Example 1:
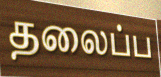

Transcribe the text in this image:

தலைப்ப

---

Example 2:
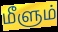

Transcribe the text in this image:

மீளும்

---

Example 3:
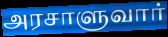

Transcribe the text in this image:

அரசாளுவார்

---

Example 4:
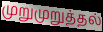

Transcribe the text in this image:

முறுமுறுத்தல்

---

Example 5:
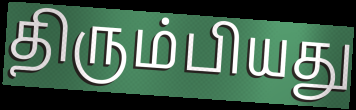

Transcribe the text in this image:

திரும்பியது